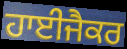
ਹਾਈਜੈਕਰ